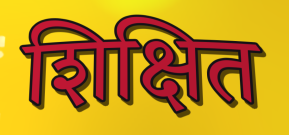
शिक्षित